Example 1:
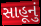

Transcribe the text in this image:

સાહૂનું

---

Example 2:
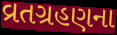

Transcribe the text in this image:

વ્રતગ્રહણના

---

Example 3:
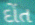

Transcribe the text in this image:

દોંત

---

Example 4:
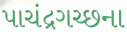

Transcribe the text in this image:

પાચંદ્રગચ્છના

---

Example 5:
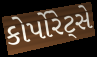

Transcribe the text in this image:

કોર્પોરેટ્સે